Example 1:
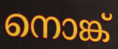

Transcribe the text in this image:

നൊങ്ക്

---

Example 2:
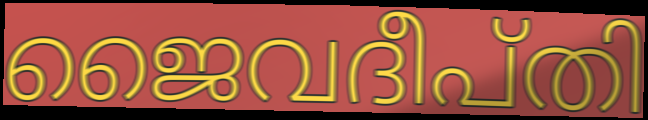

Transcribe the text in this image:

ജൈവദീപ്തി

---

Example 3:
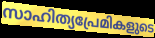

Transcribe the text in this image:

സാഹിത്യപ്രേമികളുടെ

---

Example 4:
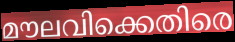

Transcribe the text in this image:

മൗലവിക്കെതിരെ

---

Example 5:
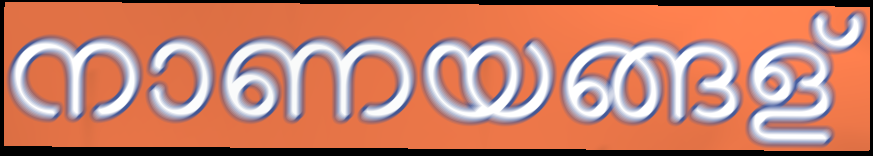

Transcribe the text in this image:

നാണയങ്ങള്